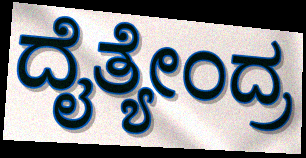
ದೈತ್ಯೇಂದ್ರ